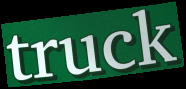
truck